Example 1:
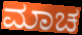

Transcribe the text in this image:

ಮಾಚ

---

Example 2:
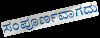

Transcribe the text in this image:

ಸಂಪೂರ್ಣವಾಗದು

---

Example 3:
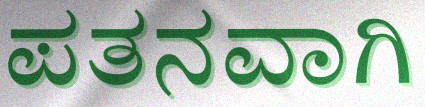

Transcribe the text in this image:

ಪತನವಾಗಿ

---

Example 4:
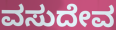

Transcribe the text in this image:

ವಸುದೇವ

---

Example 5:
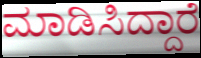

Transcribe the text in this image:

ಮಾಡಿಸಿದ್ದಾರೆ